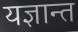
यज्ञान्त